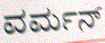
ವರ್ಮನ್